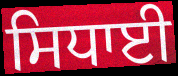
ਸਿਧਾਈ